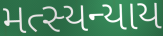
મત્સ્યન્યાય